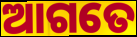
ଆଗତେ